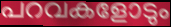
പറവകളോടും